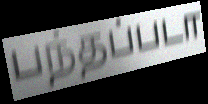
பந்தப்படா